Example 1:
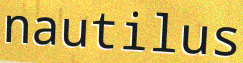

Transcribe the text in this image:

nautilus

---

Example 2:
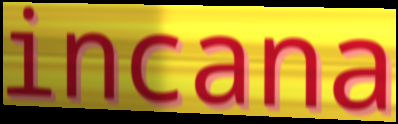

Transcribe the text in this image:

incana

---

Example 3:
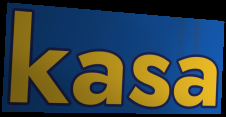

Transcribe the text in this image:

kasa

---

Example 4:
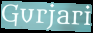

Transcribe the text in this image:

Gurjari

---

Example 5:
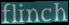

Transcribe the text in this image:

flinch